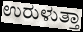
ಉರುಳುತ್ತಾ